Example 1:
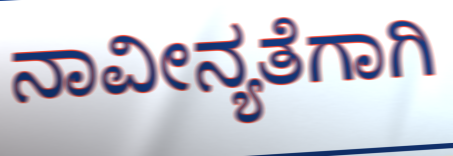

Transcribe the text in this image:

ನಾವೀನ್ಯತೆಗಾಗಿ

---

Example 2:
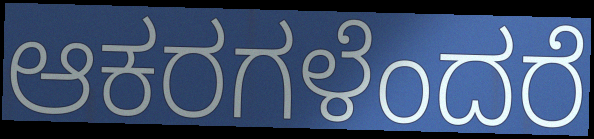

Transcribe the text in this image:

ಆಕರಗಳೆಂದರೆ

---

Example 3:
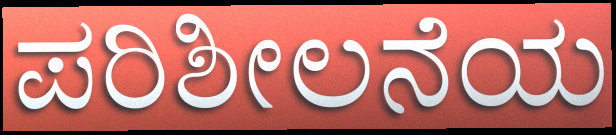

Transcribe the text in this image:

ಪರಿಶೀಲನೆಯ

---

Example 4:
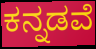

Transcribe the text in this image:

ಕನ್ನಡವೆ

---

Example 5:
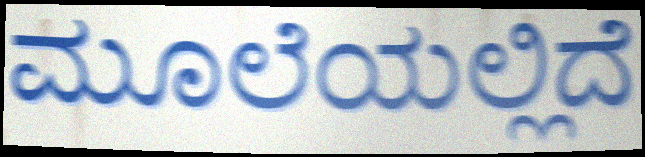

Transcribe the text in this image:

ಮೂಲೆಯಲ್ಲಿದೆ